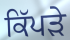
ਕਿੱਪੜੇ